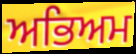
ਅਭਿਅਮ